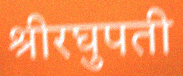
श्रीरघुपती